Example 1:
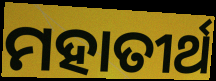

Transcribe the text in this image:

ମହାତୀର୍ଥ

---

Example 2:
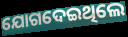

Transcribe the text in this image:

ଯୋଗଦେଇଥିଲେ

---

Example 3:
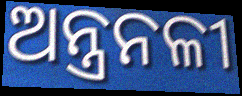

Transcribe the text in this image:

ଅନ୍ତ୍ରନଳୀ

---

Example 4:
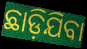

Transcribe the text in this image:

ଛାଡ଼ିଯିବା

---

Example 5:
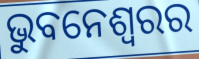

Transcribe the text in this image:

ଭୁବନେଶ୍ବରର